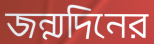
জন্মদিনের